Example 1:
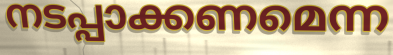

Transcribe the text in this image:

നടപ്പാക്കണമെന്ന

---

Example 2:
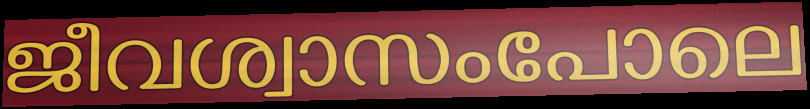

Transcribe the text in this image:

ജീവശ്വാസംപോലെ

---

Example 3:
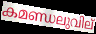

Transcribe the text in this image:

കമണ്ഡലുവില്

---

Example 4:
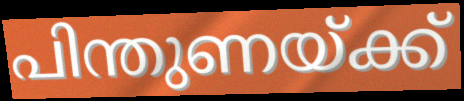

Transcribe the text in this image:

പിന്തുണയ്ക്ക്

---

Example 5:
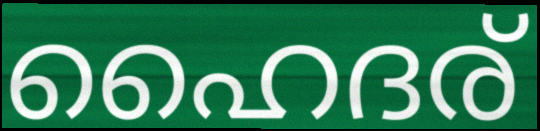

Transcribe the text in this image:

ഹൈദര്